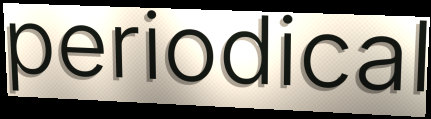
periodical